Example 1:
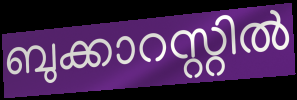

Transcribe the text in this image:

ബുക്കാറസ്റ്റിൽ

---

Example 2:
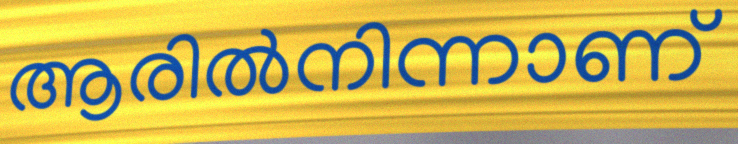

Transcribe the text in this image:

ആരിൽനിന്നാണ്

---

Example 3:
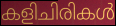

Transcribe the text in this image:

കളിചിരികൾ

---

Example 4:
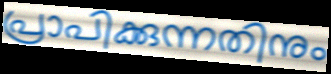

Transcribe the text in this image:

പ്രാപിക്കുന്നതിനും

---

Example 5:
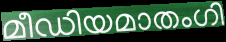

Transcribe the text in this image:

മീഡിയമാതംഗി